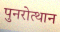
पुनरोत्थान